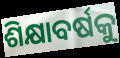
ଶିକ୍ଷାବର୍ଷକୁ